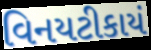
વિનયટીકાયં